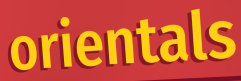
orientals